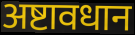
अष्टावधान